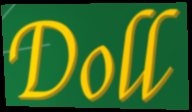
Doll